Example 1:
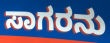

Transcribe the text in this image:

ಸಾಗರನು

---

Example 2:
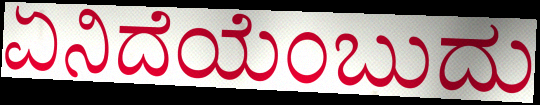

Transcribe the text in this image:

ಏನಿದೆಯೆಂಬುದು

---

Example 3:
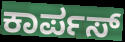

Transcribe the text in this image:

ಕಾರ್ಪಸ್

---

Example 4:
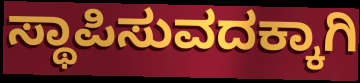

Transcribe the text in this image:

ಸ್ಥಾಪಿಸುವದಕ್ಕಾಗಿ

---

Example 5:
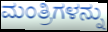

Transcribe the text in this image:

ಮಂತ್ರಿಗಳನ್ನು